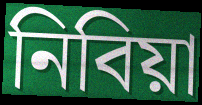
নিবিয়া